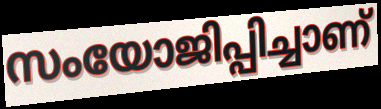
സംയോജിപ്പിച്ചാണ്